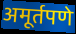
अमूर्तपणे